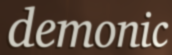
demonic